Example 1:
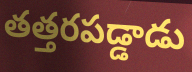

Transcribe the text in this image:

తత్తరపడ్డాడు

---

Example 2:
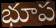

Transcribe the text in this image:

భూప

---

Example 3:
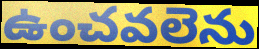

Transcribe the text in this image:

ఉంచవలెను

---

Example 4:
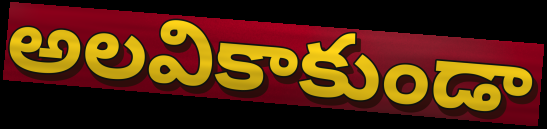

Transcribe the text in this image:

అలవికాకుండా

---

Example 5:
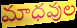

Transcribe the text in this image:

మాధవుల